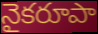
నైకరూపా